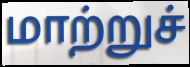
மாற்றுச்